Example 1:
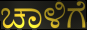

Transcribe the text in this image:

ಚಾಳಿಗೆ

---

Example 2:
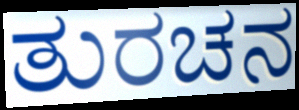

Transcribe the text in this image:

ತುರಚನ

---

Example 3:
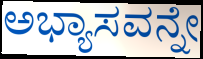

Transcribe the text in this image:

ಅಭ್ಯಾಸವನ್ನೇ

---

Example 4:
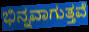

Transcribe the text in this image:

ಭಿನ್ನವಾಗುತ್ತವೆ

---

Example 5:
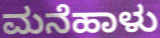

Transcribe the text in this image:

ಮನೆಹಾಳು